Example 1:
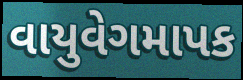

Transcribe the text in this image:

વાયુવેગમાપક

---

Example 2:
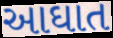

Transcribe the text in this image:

આઘાત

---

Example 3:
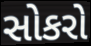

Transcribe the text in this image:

સોકરો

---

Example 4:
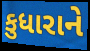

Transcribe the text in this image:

કુધારાને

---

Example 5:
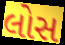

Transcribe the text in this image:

લોસ